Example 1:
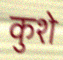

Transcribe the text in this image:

कुशे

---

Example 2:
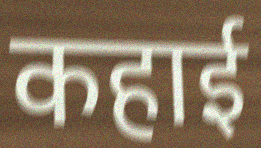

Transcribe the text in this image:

कहाई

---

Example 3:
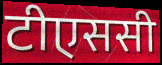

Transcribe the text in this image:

टीएससी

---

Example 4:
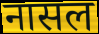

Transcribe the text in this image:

नासल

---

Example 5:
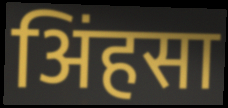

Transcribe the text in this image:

अिंहसा